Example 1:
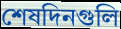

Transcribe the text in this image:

শেষদিনগুলি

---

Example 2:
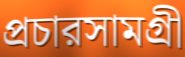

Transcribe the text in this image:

প্রচারসামগ্রী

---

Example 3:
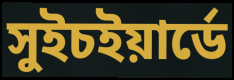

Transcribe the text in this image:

সুইচইয়ার্ডে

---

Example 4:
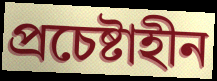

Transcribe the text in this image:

প্রচেষ্টাহীন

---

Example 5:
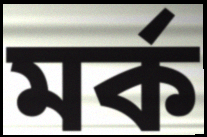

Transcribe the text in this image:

মর্ক